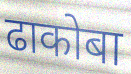
ढाकोबा